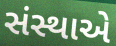
સંસ્થાએ